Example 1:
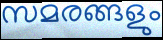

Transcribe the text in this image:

സമരങ്ങളും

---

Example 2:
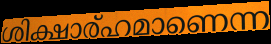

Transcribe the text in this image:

ശിക്ഷാര്ഹമാണെന്ന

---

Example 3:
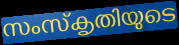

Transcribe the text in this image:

സംസ്‌കൃതിയുടെ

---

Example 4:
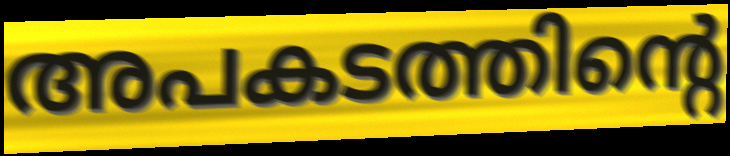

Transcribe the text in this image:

അപകടത്തിന്റെ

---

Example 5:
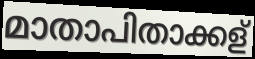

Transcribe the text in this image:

മാതാപിതാക്കള്